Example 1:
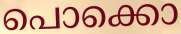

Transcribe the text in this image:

പൊക്കൊ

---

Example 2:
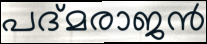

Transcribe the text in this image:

പദ്മരാജൻ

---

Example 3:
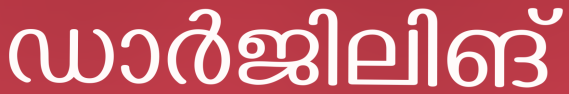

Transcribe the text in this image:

ഡാർജിലിങ്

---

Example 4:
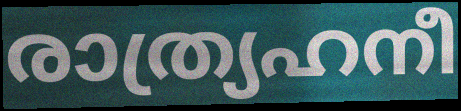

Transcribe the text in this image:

രാത്ര്യഹനീ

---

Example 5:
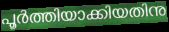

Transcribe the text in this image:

പൂർത്തിയാക്കിയതിനു